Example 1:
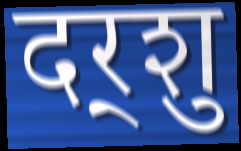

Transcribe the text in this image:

दर्शु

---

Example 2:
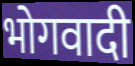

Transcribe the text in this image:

भोगवादी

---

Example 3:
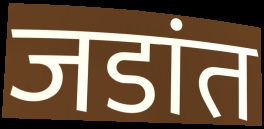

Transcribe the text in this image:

जडांत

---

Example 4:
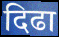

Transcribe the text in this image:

दिढा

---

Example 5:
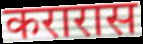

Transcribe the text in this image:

करारास